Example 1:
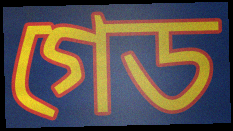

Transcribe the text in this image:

গেড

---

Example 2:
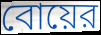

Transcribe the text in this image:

বোয়ের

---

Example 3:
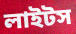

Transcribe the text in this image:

লাইটস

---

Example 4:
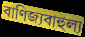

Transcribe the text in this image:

বাণিজ্যবাহুল্য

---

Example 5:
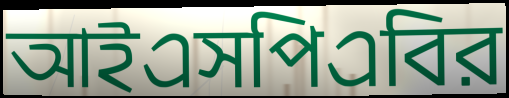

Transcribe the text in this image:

আইএসপিএবির